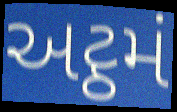
અટ્ઠમં